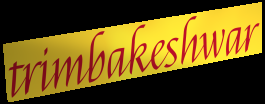
trimbakeshwar